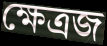
ক্ষেত্রজ